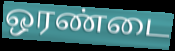
ஒரண்டை